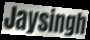
Jaysingh